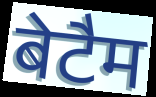
बेटैम